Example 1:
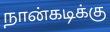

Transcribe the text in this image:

நான்கடிக்கு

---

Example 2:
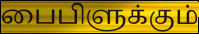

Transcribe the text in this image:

பைபிளுக்கும்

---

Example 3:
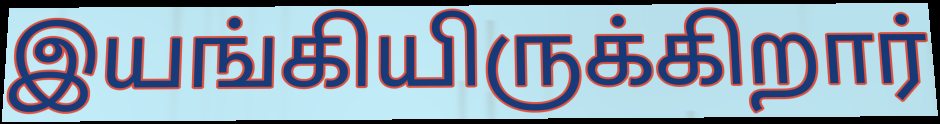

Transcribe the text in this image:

இயங்கியிருக்கிறார்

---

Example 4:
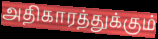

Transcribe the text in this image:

அதிகாரத்துக்கும்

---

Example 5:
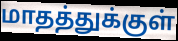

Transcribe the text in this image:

மாதத்துக்குள்